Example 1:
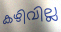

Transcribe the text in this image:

കഴിവില്ല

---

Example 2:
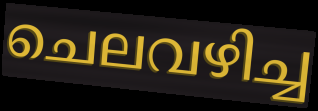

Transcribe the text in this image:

ചെലവഴിച്ച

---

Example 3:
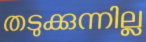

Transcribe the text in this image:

തടുക്കുന്നില്ല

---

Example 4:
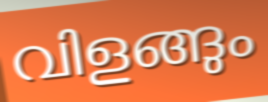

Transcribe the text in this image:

വിളങ്ങും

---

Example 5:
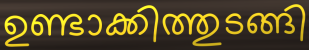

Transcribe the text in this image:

ഉണ്ടാക്കിത്തുടങ്ങി